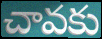
చావకు